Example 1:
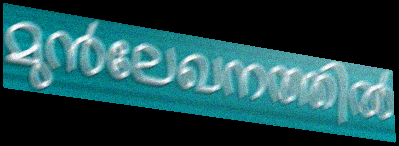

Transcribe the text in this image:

മുൻലേഖനത്തിൽ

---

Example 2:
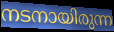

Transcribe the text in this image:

നടനായിരുന്ന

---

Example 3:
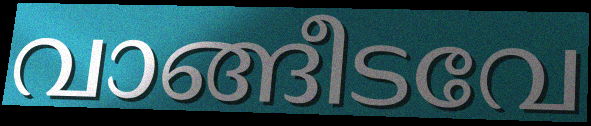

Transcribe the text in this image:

വാങ്ങീടവേ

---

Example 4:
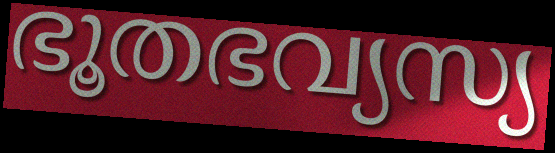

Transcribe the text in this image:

ഭൂതഭവ്യസ്യ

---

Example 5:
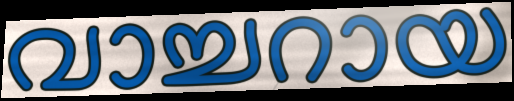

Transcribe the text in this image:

വാച്ചറായ